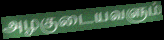
அழகுடையவளும்